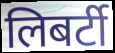
लिबर्टी